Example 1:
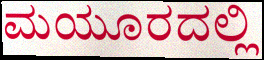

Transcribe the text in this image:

ಮಯೂರದಲ್ಲಿ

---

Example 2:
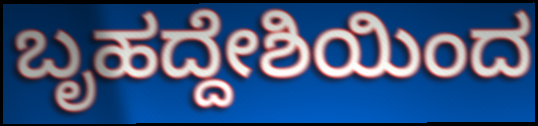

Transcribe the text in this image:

ಬೃಹದ್ದೇಶಿಯಿಂದ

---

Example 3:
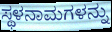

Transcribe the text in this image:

ಸ್ಥಳನಾಮಗಳನ್ನು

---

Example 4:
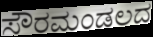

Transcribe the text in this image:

ಸೌರಮಂಡಲದ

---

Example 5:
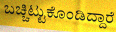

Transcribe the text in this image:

ಬಚ್ಚಿಟ್ಟುಕೊಂಡಿದ್ದಾರೆ